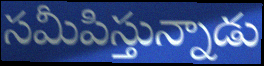
సమీపిస్తున్నాడు